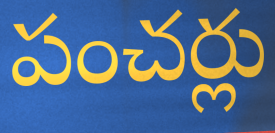
పంచర్లు